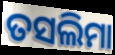
ତସଲିମା